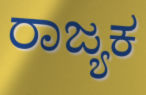
ರಾಜ್ಯಕ